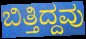
ಬಿತ್ತಿದ್ದವು